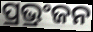
ପ୍ରଭ୍ରଂଜନ